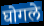
घोगले